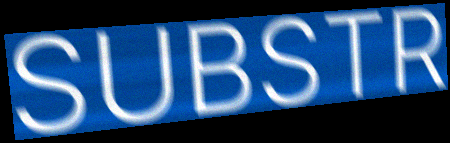
SUBSTR